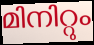
മിനിറ്റും